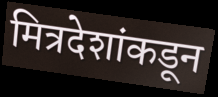
मित्रदेशांकडून